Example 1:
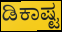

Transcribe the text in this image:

ಡಿಕಾಷ್ಟ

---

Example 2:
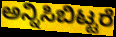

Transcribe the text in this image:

ಅನ್ನಿಸಿಬಿಟ್ಟರೆ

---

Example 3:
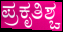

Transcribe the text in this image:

ಪ್ರಕೃತಿಶ್ಚ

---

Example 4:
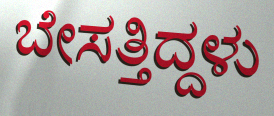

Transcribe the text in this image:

ಬೇಸತ್ತಿದ್ದಳು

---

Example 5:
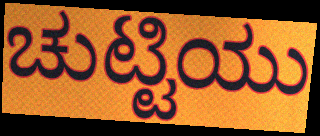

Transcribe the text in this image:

ಚುಟ್ಟಿಯು